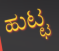
ಹುಟ್ಟ